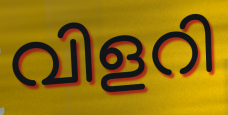
വിളറി